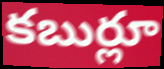
కబుర్లూ